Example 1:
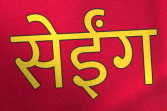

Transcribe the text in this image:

सेईंग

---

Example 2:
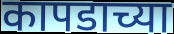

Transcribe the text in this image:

कापडाच्या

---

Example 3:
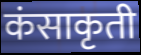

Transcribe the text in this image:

कंसाकृती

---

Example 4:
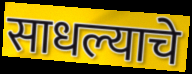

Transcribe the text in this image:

साधल्याचे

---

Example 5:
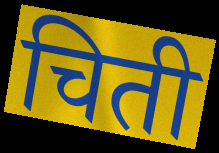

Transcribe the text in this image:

चिती